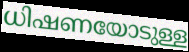
ധിഷണയോടുള്ള